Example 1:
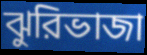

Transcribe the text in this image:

ঝুরিভাজা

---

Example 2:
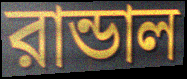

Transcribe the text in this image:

রান্ডাল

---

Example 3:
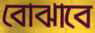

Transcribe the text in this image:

বোঝাবে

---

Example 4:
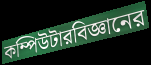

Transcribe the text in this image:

কম্পিউটারবিজ্ঞানের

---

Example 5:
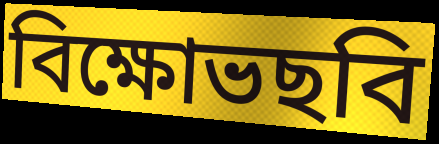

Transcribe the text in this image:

বিক্ষোভছবি